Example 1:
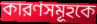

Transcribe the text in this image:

কারণসমূহকে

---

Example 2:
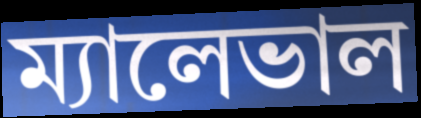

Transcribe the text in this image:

ম্যালেভাল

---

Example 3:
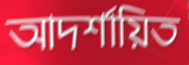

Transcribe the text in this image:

আদর্শায়িত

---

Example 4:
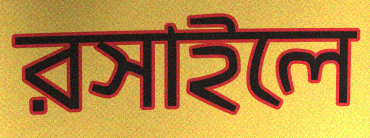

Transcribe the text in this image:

রসাইলে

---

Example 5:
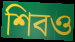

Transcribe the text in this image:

শিবও